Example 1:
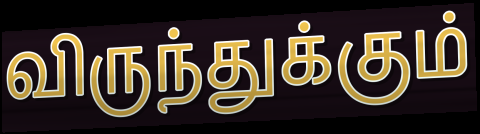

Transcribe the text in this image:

விருந்துக்கும்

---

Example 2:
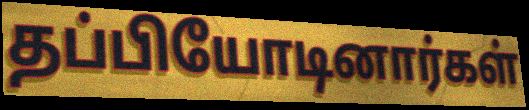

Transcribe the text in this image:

தப்பியோடினார்கள்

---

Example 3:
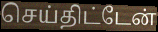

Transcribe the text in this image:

செய்திட்டேன்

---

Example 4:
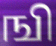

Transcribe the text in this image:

ஙி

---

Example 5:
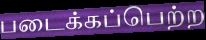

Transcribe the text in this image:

படைக்கப்பெற்ற